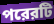
পরেরটি